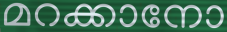
മറക്കാനോ